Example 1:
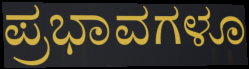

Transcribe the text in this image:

ಪ್ರಭಾವಗಳೂ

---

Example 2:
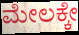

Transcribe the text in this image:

ಮೇಲಕ್ಕೇ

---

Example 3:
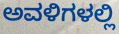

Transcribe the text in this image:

ಅವಳಿಗಳಲ್ಲಿ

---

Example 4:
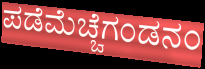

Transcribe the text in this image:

ಪಡೆಮೆಚ್ಚೆಗಂಡನಂ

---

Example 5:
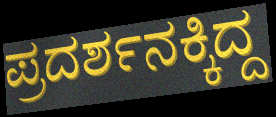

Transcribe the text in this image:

ಪ್ರದರ್ಶನಕ್ಕಿದ್ದ